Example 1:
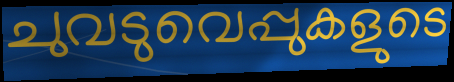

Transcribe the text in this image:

ചുവടുവെപ്പുകളുടെ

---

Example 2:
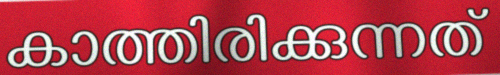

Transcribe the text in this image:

കാത്തിരിക്കുന്നത്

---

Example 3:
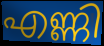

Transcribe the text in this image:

എണ്ണി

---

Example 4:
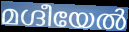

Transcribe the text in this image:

മഗ്ദീയേൽ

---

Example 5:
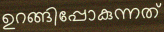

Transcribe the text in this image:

ഉറങ്ങിപ്പോകുന്നത്